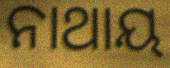
ନାଥାୟ